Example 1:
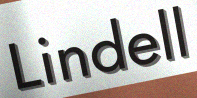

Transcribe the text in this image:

Lindell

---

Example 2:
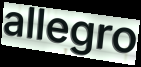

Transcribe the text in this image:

allegro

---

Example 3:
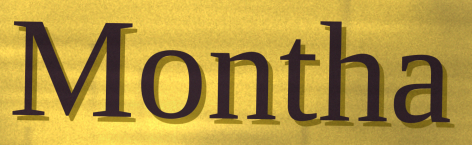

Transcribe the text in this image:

Montha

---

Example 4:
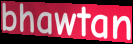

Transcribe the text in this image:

bhawtan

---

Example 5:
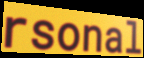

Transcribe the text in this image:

rsonal